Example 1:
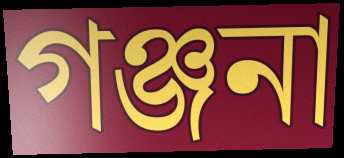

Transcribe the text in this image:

গঞ্জনা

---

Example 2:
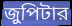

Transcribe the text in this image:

জুপিটার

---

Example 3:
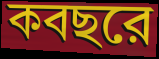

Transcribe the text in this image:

কবছরে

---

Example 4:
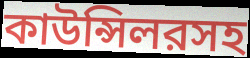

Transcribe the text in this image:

কাউন্সিলরসহ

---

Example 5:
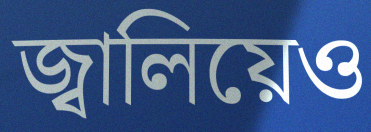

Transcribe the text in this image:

জ্বালিয়েও